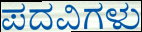
ಪದವಿಗಳು